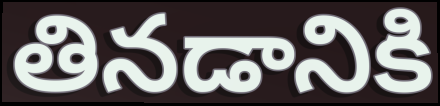
తినడానికి